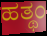
ಹತ್ಥಂ